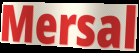
Mersal